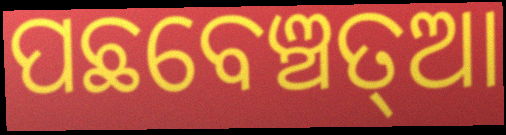
ପଛବେଞ୍ଚତ୍ଆ